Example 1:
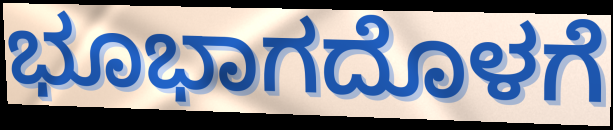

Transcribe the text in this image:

ಭೂಭಾಗದೊಳಗೆ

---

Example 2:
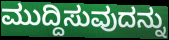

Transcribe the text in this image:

ಮುದ್ದಿಸುವುದನ್ನು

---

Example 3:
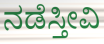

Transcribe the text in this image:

ನಡೆಸ್ತೀವಿ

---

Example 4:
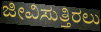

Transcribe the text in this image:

ಜೀವಿಸುತ್ತಿರಲು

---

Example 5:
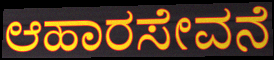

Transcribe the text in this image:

ಆಹಾರಸೇವನೆ